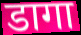
डागा